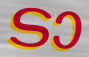
ടാ